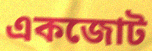
একজোট